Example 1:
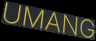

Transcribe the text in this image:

UMANG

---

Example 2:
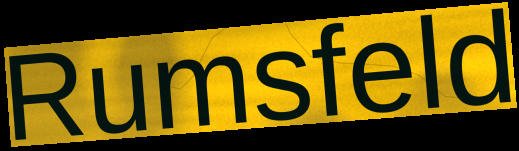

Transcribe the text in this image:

Rumsfeld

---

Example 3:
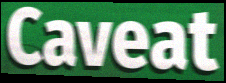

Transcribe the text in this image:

Caveat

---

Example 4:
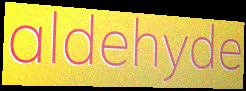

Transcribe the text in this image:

aldehyde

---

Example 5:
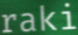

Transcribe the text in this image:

raki